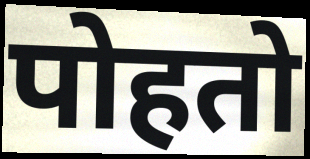
पोहतो